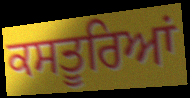
ਕਸਤੂਰਿਆਂ